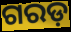
ଗରଡ଼